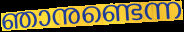
ഞാനുണ്ടെന്ന